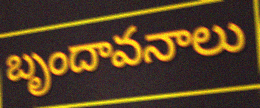
బృందావనాలు